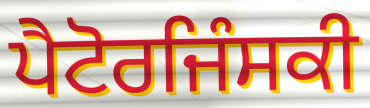
ਪੈਟੋਰਜਿੰਸਕੀ